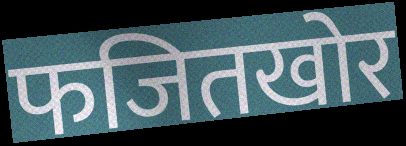
फजितखोर